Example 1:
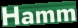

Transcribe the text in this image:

Hamm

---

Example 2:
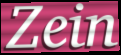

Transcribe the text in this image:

Zein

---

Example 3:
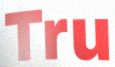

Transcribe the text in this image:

Tru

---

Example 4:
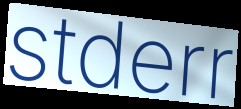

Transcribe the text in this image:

stderr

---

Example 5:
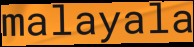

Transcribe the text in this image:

malayala